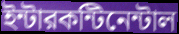
ইন্টারকন্টিনেন্টাল